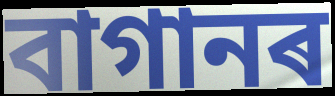
বাগানৰ